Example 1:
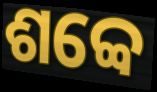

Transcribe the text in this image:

ଶବ୍ବେ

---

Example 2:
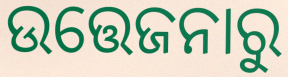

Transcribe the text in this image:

ଉତ୍ତେଜନାରୁ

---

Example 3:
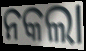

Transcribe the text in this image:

ନକଲା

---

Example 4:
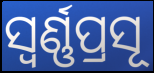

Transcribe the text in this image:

ସ୍ୱର୍ଣ୍ଣପ୍ରସୂ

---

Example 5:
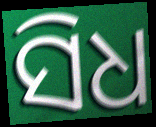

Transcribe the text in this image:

ସିଧ